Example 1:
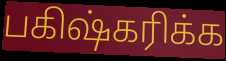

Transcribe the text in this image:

பகிஷ்கரிக்க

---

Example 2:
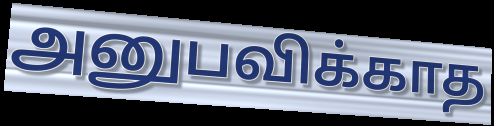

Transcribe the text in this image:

அனுபவிக்காத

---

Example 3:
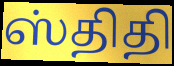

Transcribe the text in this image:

ஸ்திதி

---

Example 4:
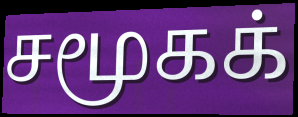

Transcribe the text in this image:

சமூகக்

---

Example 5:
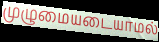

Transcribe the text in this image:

முழுமையடையாமல்